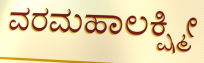
ವರಮಹಾಲಕ್ಷ್ಮೀ